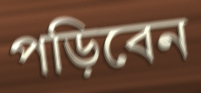
পড়িবেন